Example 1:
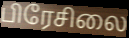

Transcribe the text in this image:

பிரேசிலை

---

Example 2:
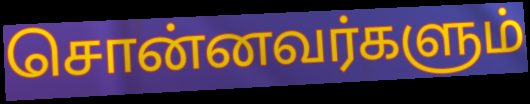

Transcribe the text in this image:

சொன்னவர்களும்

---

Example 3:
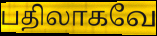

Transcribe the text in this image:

பதிலாகவே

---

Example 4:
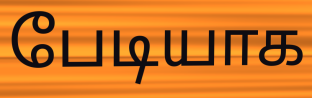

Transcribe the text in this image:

பேடியாக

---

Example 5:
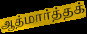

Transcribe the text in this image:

ஆத்மார்த்தக்